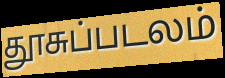
தூசுப்படலம்